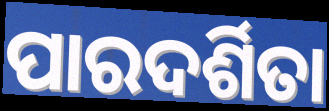
ପାରଦର୍ଶିତା